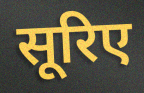
सूरिए